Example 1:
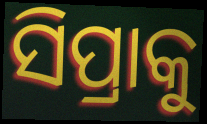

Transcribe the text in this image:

ସିପ୍ରାକୁ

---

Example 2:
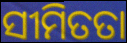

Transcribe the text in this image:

ସୀମିତତା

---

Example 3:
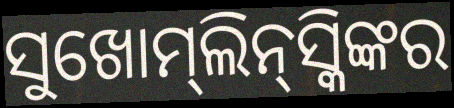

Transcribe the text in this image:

ସୁଖୋମ୍‌ଲିନ୍‌ସ୍କିଙ୍କର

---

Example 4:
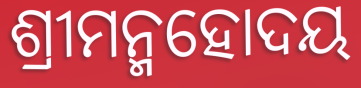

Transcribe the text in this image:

ଶ୍ରୀମନ୍ମହୋଦୟ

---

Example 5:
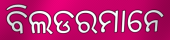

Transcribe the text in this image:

ବିଲଡରମାନେ